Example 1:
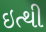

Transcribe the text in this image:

ઇત્થી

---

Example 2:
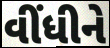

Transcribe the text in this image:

વીંધીને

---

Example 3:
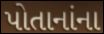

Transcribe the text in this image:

પોતાનાંના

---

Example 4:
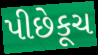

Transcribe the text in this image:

પીછેકૂચ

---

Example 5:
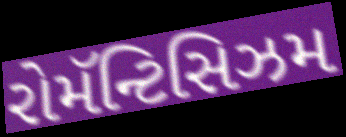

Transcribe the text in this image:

રોમૅન્ટિસિઝમ